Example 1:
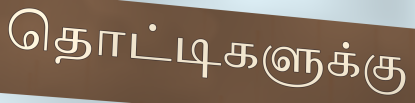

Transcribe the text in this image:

தொட்டிகளுக்கு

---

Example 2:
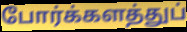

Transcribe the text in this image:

போர்க்களத்துப்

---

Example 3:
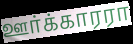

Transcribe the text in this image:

ஊர்க்காரரா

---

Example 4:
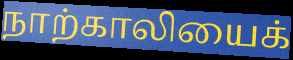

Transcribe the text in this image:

நாற்காலியைக்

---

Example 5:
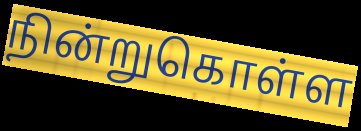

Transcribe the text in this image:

நின்றுகொள்ள